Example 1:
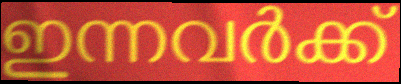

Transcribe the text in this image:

ഇന്നവർക്ക്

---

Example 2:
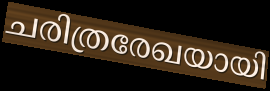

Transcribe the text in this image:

ചരിത്രരേഖയായി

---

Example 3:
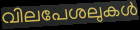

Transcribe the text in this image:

വിലപേശലുകൾ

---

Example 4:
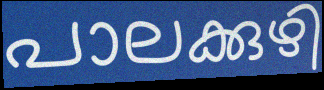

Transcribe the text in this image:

പാലക്കുഴി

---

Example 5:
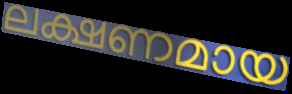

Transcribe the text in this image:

ലക്ഷണമായ